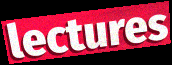
lectures